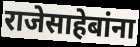
राजेसाहेबांना